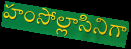
హంసోల్లాసినిగా